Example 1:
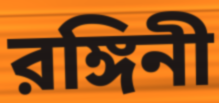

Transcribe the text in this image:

রঙ্গিনী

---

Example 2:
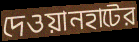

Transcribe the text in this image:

দেওয়ানহাটের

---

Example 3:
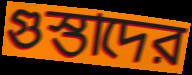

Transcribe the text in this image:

গুস্তাদের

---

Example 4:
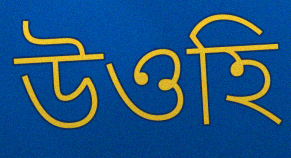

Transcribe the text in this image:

উওহি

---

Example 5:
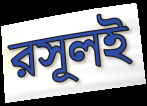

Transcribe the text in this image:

রসূলই